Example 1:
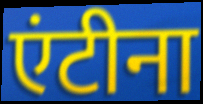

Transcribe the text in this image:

एंटीना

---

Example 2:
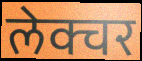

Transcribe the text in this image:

लेक्चर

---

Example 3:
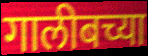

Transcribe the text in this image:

गालीबच्या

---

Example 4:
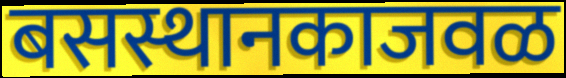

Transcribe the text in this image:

बसस्थानकाजवळ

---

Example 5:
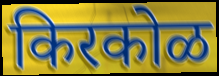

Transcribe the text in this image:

किरकोळ